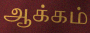
ஆக்கம்